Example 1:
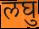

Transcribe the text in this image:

लघु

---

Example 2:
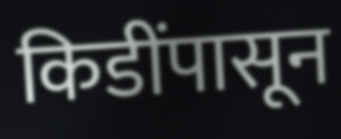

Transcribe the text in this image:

किडींपासून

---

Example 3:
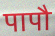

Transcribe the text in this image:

पापौ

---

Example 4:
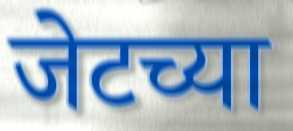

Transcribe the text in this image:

जेटच्या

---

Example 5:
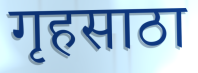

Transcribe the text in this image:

गृहसाठा